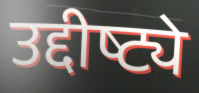
उद्दीष्ट्ये